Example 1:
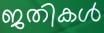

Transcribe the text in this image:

ജതികൾ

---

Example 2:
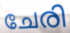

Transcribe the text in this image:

ചേരി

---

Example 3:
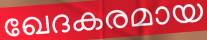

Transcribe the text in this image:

ഖേദകരമായ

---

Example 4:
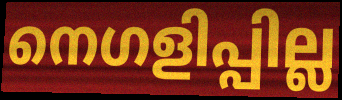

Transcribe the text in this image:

നെഗളിപ്പില്ല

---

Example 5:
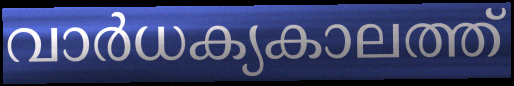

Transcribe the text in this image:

വാർധക്യകാലത്ത്